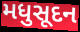
મધુસૂદન